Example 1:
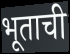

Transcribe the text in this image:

भूताची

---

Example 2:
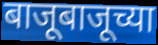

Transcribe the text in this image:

बाजूबाजूच्या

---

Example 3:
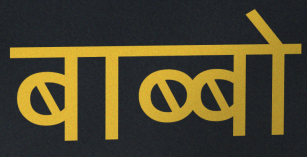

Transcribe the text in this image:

बाब्बो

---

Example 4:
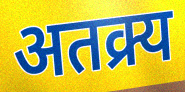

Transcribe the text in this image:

अतक्र्य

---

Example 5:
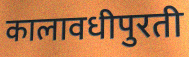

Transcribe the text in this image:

कालावधीपुरती